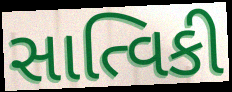
સાત્વિકી